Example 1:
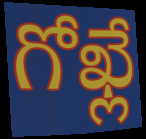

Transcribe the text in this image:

గోఖ్లే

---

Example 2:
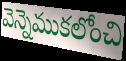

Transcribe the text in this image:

వెన్నెముకలోంచి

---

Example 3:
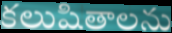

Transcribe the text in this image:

కలుషితాలను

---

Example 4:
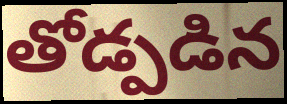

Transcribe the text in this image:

తోడ్పడిన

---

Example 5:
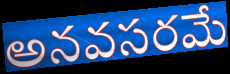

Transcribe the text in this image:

అనవసరమే